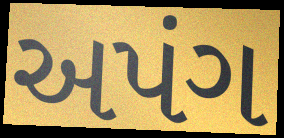
અપંગ